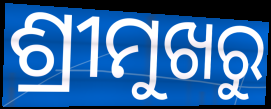
ଶ୍ରୀମୁଖରୁ